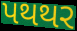
પથથર